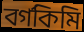
বৰ্গকিমি